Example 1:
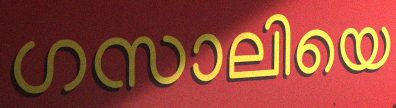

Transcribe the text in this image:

ഗസാലിയെ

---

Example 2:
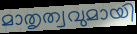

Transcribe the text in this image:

മാതൃത്വവുമായി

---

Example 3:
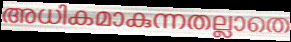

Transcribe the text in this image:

അധികമാകുന്നതല്ലാതെ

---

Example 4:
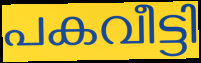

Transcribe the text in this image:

പകവീട്ടി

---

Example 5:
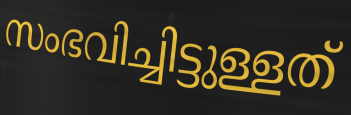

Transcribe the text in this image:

സംഭവിച്ചിട്ടുള്ളത്